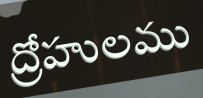
ద్రోహులము